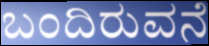
ಬಂದಿರುವನೆ